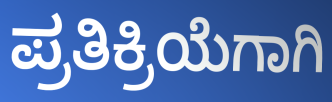
ಪ್ರತಿಕ್ರಿಯೆಗಾಗಿ